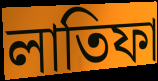
লাতিফা